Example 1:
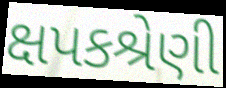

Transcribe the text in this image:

ક્ષપકશ્રેણી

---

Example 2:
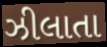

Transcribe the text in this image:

ઝીલાતા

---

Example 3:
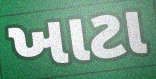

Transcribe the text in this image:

ખાટા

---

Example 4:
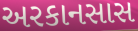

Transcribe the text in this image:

અરકાનસાસ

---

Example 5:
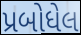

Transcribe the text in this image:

પ્રબોધેલ